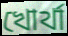
খোৰ্থা